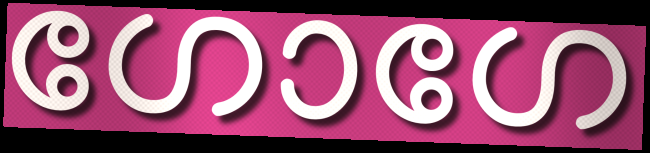
ഗോഗേ